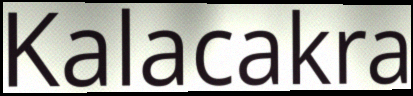
Kalacakra